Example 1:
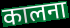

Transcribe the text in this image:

कालना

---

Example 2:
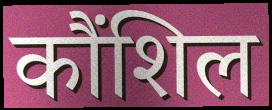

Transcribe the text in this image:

कौंशिल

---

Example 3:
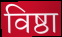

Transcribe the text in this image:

विष्ठा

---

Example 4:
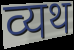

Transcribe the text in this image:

व्यथ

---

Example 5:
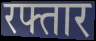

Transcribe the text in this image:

रफ्‍तार